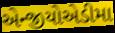
એન્જીયોએડીમા